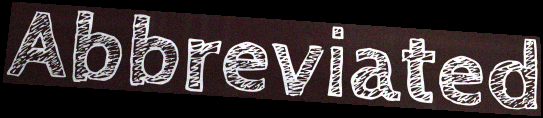
Abbreviated